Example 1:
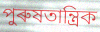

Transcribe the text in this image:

পুৰুষতান্ত্ৰিক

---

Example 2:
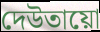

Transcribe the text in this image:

দেউতায়ো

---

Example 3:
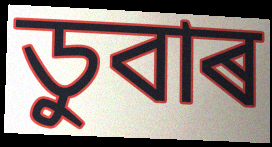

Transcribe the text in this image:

ডুবাৰ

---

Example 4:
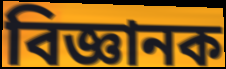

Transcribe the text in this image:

বিজ্ঞানক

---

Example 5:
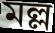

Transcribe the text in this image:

মল্ল